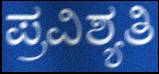
ಪ್ರವಿಶ್ಯತಿ